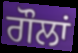
ਗੌਲਾਂ